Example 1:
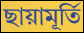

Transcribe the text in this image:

ছায়ামূর্তি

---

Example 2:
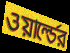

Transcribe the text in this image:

ওয়ার্ল্ডের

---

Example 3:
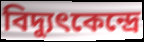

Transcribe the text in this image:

বিদ্যুৎকেন্দ্রে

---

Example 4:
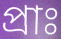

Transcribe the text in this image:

প্রাঃ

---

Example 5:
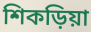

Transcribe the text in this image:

শিকড়িয়া